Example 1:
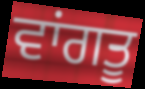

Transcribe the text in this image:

ਵਾਂਗਤੂ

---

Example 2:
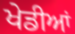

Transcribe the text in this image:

ਖੇਡੀਆਂ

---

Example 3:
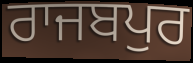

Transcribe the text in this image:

ਰਾਜਬਪੁਰ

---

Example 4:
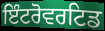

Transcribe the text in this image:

ਇੰਟਰੋਵਰਟਿਡ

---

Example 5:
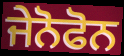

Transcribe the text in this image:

ਜੇਨੋਫੋਨ